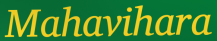
Mahavihara